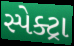
સ્પેક્ટ્રા